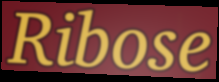
Ribose